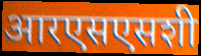
आरएसएसशी